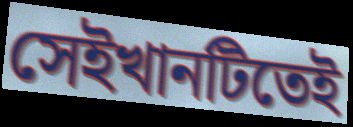
সেইখানটিতেই